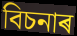
বিচনাৰ